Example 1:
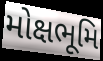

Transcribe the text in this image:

મોક્ષભૂમિ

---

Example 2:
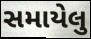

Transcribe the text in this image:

સમાયેલુ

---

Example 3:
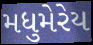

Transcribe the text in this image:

મધુમેરેય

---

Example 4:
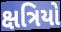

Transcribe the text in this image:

ક્ષત્રિયો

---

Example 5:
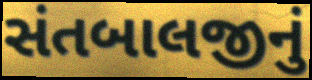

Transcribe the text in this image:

સંતબાલજીનું